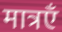
मात्रएँ